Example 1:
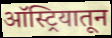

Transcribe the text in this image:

ऑस्ट्रियातून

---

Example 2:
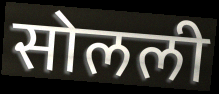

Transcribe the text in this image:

सोलली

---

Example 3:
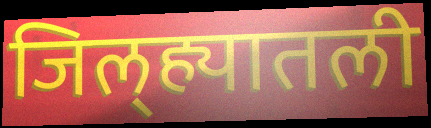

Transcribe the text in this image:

जिल्ह्यातली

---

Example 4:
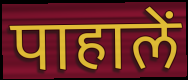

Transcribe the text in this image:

पाहालें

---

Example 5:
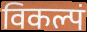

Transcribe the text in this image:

विकल्पं